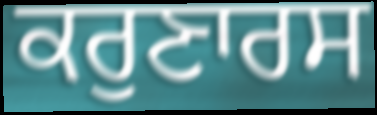
ਕਰੁਣਾਰਸ